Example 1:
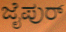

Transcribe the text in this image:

ಜೈಪುರ್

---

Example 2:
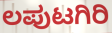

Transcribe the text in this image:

ಲಪುಟಗಿರಿ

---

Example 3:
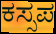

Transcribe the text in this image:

ಕಸ್ಸಪ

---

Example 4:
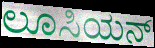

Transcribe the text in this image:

ಲೂಸಿಯನ್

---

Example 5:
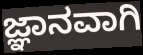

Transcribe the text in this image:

ಜ್ಞಾನವಾಗಿ